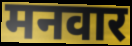
मनवार